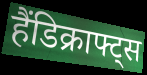
हैंडिक्राफ्ट्स